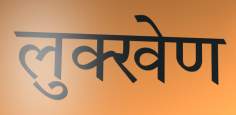
लुक्खेण